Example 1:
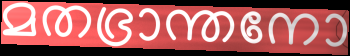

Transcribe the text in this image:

മതഭ്രാന്തനോ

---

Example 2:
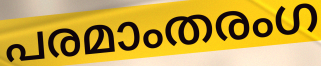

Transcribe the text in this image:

പരമാംതരംഗ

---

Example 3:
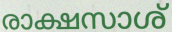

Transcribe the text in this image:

രാക്ഷസാശ്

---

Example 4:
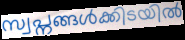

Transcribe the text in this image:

സ്വപ്നങ്ങൾക്കിടയിൽ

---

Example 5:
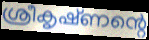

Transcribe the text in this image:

ശ്രീകൃഷ്‌ണന്റെ